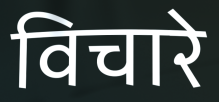
विचारे